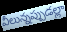
వీలున్నప్పుడల్లా